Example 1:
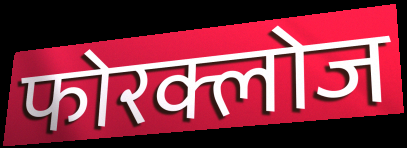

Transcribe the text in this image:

फोरक्लोज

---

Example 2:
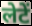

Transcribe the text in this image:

लेटें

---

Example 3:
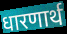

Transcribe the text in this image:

धारणार्थ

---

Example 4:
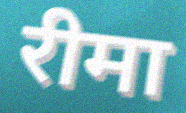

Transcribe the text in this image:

रीमा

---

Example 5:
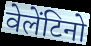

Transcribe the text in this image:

वेलेंटिनो